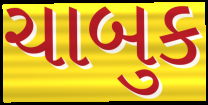
ચાબુક